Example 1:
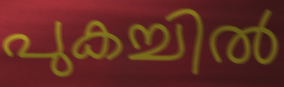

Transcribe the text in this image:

പുകച്ചിൽ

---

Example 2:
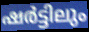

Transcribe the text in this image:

ഷർട്ടിലും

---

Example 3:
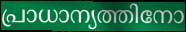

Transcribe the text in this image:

പ്രാധാന്യത്തിനോ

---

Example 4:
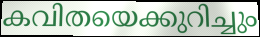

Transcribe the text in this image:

കവിതയെക്കുറിച്ചും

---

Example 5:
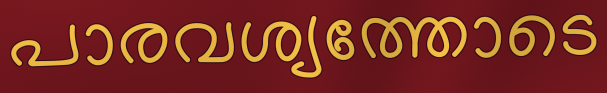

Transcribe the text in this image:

പാരവശ്യത്തോടെ